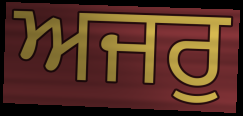
ਅਜਰੁ